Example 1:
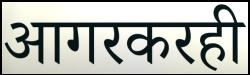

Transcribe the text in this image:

आगरकरही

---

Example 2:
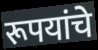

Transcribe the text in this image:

रूपयांचे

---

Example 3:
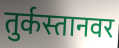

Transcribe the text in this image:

तुर्कस्तानवर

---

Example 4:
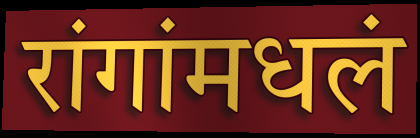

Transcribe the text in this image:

रांगांमधलं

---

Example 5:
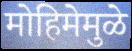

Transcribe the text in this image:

मोहिमेमुळे